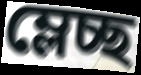
ম্লেচ্ছ